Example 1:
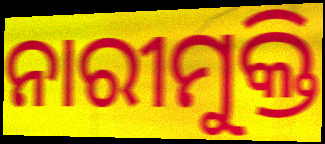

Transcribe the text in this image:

ନାରୀମୁକ୍ତି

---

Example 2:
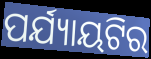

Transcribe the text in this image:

ପର୍ଯ୍ୟାୟଟିର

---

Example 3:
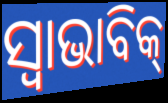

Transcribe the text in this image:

ସ୍ଵାଭାବିକ୍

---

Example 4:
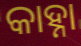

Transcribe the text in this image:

କାହ୍ନା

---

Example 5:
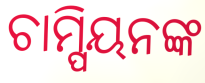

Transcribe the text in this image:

ଚାମ୍ପିୟନଙ୍କ